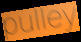
pulley